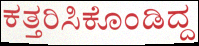
ಕತ್ತರಿಸಿಕೊಂಡಿದ್ದ